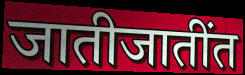
जातीजातींत